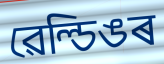
ৱেল্ডিঙৰ